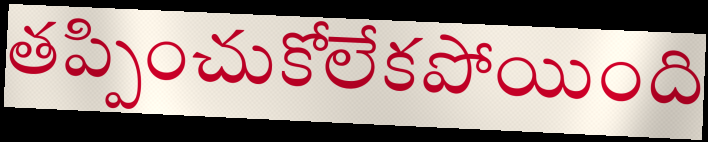
తప్పించుకోలేకపోయింది